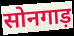
सोनगाड़